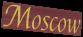
Moscow